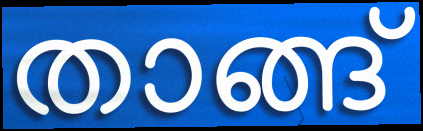
താങ്ങ്